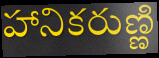
హానికరుణ్ణి